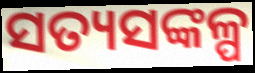
ସତ୍ୟସଙ୍କଳ୍ପ